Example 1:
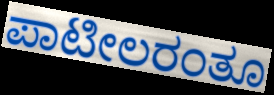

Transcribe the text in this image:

ಪಾಟೀಲರಂತೂ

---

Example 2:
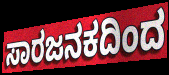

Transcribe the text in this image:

ಸಾರಜನಕದಿಂದ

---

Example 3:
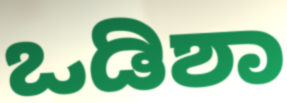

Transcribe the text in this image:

ಒಡಿಶಾ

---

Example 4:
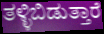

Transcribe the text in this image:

ತಳ್ಳಿಬಿಡುತ್ತಾರೆ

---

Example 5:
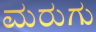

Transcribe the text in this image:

ಮರುಗು